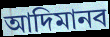
আদিমানব